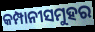
କମ୍ପାନୀସମୁହର